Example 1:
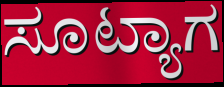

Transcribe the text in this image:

ಸೂಟ್ಯಾಗ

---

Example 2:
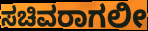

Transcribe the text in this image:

ಸಚಿವರಾಗಲೀ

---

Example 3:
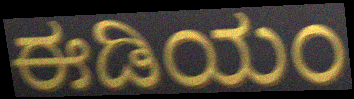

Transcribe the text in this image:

ಈಡಿಯಂ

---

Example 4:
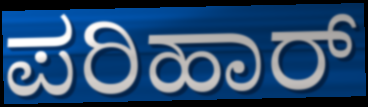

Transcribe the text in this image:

ಪರಿಹಾರ್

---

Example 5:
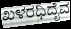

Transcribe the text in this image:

ಖಳರಧಿದೈವ